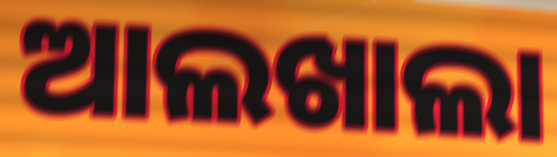
ଆଲଖାଲା